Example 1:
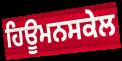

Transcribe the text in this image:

ਹਿਊਮਨਸਕੇਲ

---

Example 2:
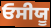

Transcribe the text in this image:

ਓਸੀਯੂ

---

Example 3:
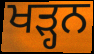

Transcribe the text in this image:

ਖੜ੍ਹਨ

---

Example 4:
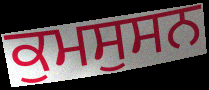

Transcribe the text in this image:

ਕੁਮਸੁਸਨ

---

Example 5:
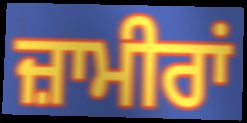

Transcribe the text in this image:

ਜ਼ਾਮੀਰਾਂ